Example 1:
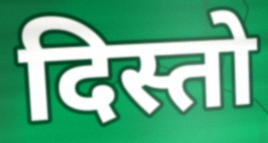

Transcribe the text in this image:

दिस्तो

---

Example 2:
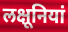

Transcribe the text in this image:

लक्षूनियां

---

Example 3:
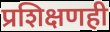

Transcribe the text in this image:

प्रशिक्षणही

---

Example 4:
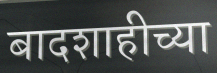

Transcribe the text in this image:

बादशाहीच्या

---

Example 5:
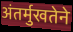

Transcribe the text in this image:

अंतर्मुखतेने